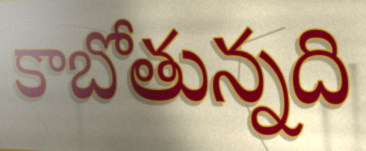
కాబోతున్నది